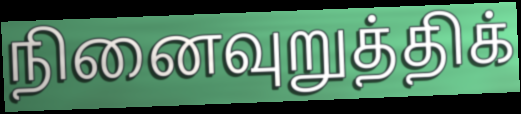
நினைவுறுத்திக்